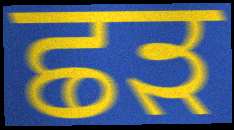
ਛੜ